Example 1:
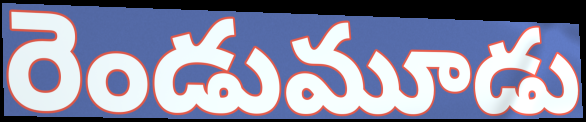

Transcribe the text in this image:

రెండుమూడు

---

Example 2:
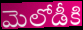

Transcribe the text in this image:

మెలోడీకి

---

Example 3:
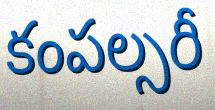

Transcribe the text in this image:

కంపల్సరీ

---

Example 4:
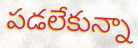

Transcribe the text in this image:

పడలేకున్నా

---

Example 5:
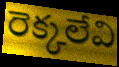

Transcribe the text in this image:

రెక్కలేవి